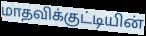
மாதவிக்குட்டியின்